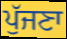
ਪੁੱਜਣਾ